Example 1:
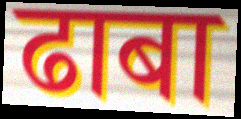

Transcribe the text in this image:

ढाबा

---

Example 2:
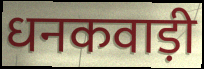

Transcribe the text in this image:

धनकवाड़ी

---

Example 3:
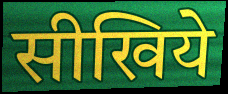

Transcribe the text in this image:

सीखिये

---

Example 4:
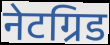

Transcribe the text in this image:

नेटग्रिड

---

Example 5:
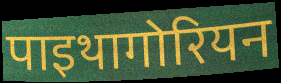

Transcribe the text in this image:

पाइथागोरियन